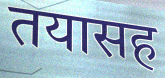
तयासह